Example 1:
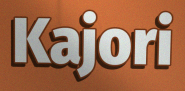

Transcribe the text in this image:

Kajori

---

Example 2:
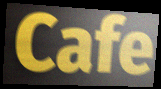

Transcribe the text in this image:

Cafe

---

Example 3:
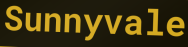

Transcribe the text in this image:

Sunnyvale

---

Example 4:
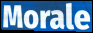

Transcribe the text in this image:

Morale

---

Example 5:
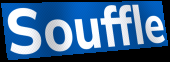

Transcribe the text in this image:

Souffle